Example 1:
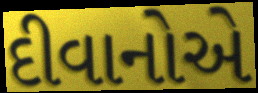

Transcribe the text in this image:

દીવાનોએ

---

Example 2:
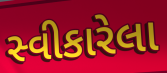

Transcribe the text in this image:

સ્વીકારેલા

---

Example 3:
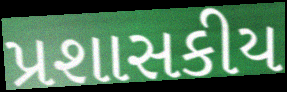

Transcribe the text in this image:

પ્રશાસકીય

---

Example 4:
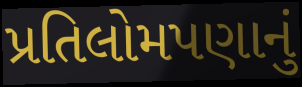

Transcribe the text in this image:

પ્રતિલોમપણાનું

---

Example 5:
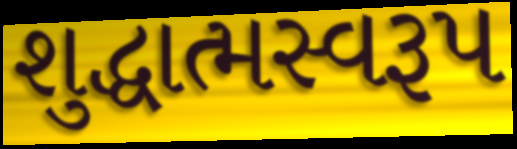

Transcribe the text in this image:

શુદ્ધાત્મસ્વરૂપ